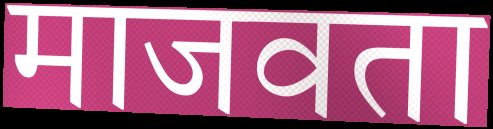
माजवता